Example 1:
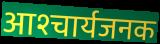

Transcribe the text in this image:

आश्चार्यजनक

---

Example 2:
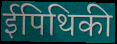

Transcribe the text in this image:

ईपिथिकी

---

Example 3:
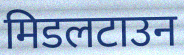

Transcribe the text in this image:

मिडलटाउन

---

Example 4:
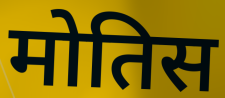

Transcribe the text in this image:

मोतिस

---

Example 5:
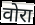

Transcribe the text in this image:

वोरा